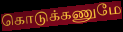
கொடுக்கணுமே